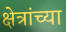
क्षेत्रांच्या